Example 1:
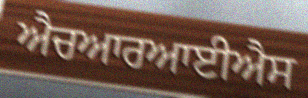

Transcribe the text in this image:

ਐਚਆਰਆਈਐਸ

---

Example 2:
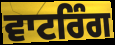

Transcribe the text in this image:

ਵਾਟਰਿੰਗ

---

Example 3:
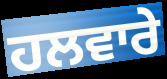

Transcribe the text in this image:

ਹਲਵਾਰੇ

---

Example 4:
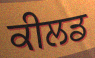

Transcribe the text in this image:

ਕੀਲਡ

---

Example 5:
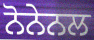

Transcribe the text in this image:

ਨੋਨੇਨਲ